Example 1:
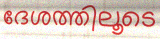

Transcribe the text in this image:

ദേശത്തിലൂടെ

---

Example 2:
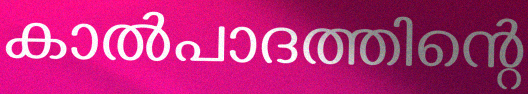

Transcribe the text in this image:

കാൽപാദത്തിന്റെ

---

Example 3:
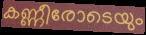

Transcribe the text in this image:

കണ്ണീരോടെയും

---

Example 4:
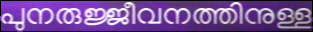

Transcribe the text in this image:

പുനരുജ്ജീവനത്തിനുള്ള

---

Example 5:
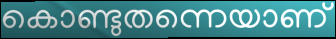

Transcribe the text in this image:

കൊണ്ടുതന്നെയാണ്